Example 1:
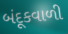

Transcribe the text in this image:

બંદૂકવાળી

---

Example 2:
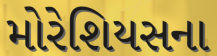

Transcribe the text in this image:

મોરેશિયસના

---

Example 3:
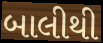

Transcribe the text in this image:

બાલીથી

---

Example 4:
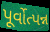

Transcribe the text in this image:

પૂર્વોત્પન્ન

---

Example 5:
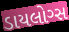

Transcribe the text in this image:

ડાયલોગ્સ